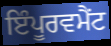
ਇੰਪੂਰਵਮੈਂਟ